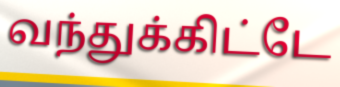
வந்துக்கிட்டே